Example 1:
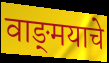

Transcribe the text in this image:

वाङ्‍मयाचे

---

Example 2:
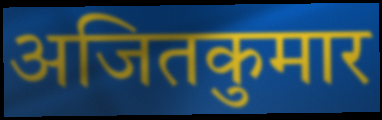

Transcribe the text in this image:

अजितकुमार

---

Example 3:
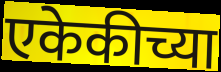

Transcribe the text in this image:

एकेकीच्या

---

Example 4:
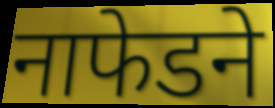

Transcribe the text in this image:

नाफेडने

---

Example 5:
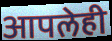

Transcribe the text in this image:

आपलेही